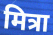
मित्रा